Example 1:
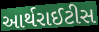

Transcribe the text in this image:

આર્થરાઈટીસ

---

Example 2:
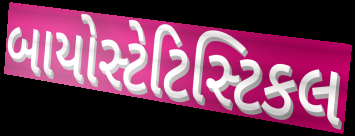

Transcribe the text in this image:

બાયોસ્ટેટિસ્ટિકલ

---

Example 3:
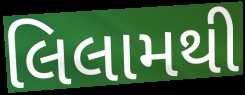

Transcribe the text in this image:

લિલામથી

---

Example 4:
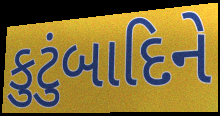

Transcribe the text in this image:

કુટુંબાદિને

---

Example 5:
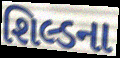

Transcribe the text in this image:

શિલ્ડના